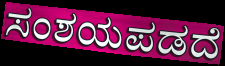
ಸಂಶಯಪಡದೆ